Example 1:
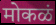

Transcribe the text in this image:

मोकळं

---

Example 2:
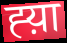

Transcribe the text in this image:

ह्य़ा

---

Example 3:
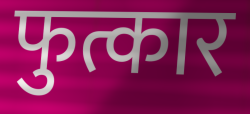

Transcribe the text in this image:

फुत्कार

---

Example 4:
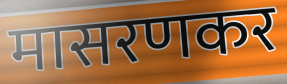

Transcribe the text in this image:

मासरणकर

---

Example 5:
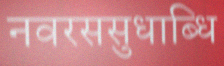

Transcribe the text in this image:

नवरससुधाब्धि